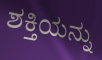
ಶಕ್ತಿಯನ್ನು